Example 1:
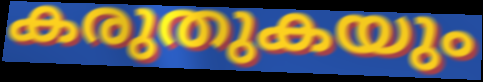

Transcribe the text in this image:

കരുതുകയും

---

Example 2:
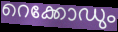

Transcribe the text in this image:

റെക്കോഡും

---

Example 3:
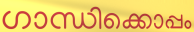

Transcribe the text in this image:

ഗാന്ധിക്കൊപ്പം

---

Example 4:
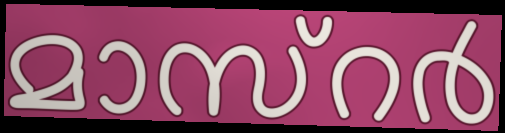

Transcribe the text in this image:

മാസ്റർ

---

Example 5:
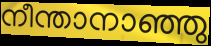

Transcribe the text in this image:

നീന്താനാഞ്ഞു